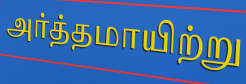
அர்த்தமாயிற்று